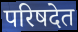
परिषदेत